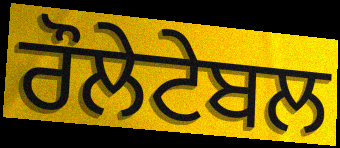
ਰੌਲੇਟੇਬਲ